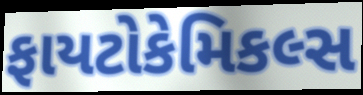
ફાયટોકેમિકલ્સ